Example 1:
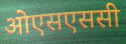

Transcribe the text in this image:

ओएसएससी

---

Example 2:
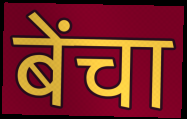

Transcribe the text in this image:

बेंचा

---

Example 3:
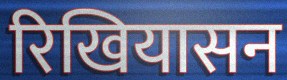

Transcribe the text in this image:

रिखियासन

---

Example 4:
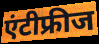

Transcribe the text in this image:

एंटीफ्रीज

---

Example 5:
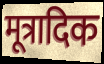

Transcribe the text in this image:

मूत्रादिक